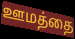
ஊமத்தை